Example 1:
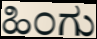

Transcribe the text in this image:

ಹಿಂಗು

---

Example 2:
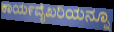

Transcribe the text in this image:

ಕಾರ್ಯವೈಖರಿಯನ್ನೂ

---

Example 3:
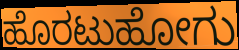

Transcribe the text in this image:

ಹೊರಟುಹೋಗು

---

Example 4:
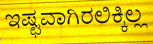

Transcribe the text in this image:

ಇಷ್ಟವಾಗಿರಲಿಕ್ಕಿಲ್ಲ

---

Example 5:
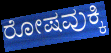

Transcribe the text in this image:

ರೋಷವುಕ್ಕಿ